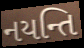
નયન્તિ